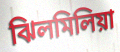
ঝিলমিলিয়া